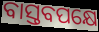
ବାସ୍ତବପକ୍ଷେ